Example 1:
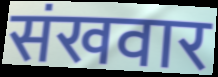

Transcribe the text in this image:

संखवार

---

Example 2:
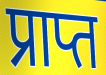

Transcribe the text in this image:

प्राप्‍त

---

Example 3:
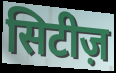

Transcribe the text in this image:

सिटीज़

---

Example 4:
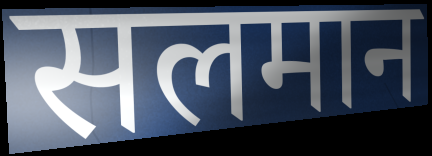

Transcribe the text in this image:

सलमान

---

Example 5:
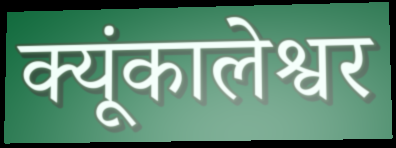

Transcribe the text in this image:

क्यूंकालेश्वर